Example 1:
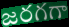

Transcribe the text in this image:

జరగగా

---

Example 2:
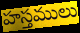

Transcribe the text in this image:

హస్తములు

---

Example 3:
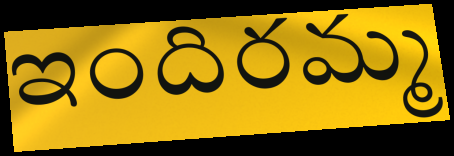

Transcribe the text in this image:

ఇందిరమ్మ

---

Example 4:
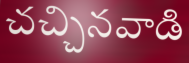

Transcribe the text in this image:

చచ్చినవాడి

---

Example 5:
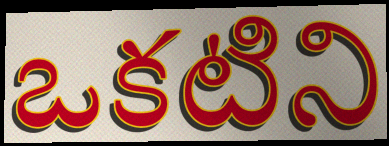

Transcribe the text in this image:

ఒకటిని